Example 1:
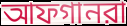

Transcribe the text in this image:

আফগানরা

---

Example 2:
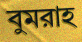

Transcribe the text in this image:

বুমরাহ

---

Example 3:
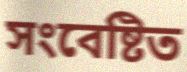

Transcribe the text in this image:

সংবেষ্টিত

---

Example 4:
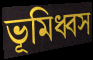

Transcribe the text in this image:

ভূমিধ্বস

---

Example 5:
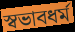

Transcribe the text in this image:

স্বভাবধর্ম